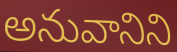
అనువానిని